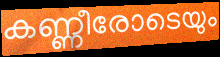
കണ്ണീരോടെയും